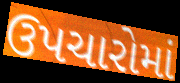
ઉપચારોમાં